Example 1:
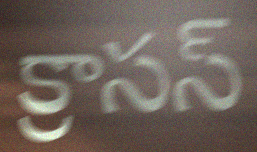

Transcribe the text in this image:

క్రాసస్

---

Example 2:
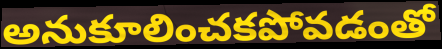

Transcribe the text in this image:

అనుకూలించకపోవడంతో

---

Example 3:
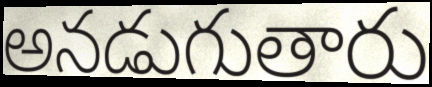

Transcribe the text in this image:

అనడుగుతారు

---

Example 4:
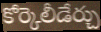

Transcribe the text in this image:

కోర్కెలీడేర్చు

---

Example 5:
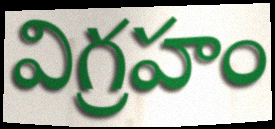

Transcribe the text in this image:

విగ్రహం